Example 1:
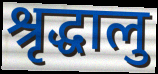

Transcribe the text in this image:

श्रृद्धालु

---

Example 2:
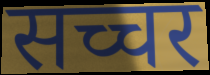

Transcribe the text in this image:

सच्चर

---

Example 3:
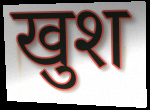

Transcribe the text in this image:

खुश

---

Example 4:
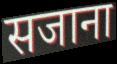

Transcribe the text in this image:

सजाना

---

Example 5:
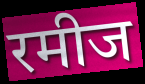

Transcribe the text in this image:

रमीज